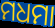
ମଧମା